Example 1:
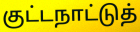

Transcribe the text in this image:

குட்டநாட்டுத்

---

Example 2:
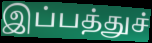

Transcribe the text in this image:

இப்பத்துச்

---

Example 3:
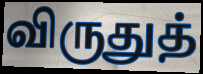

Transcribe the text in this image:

விருதுத்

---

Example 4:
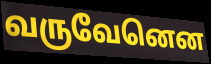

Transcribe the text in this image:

வருவேனென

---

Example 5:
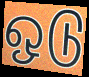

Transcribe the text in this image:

ஒடு